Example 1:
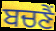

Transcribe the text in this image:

ਬਚਣੈਂ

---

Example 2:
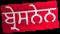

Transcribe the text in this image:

ਬ੍ਰੇਸਨੇਨ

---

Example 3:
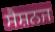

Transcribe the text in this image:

ਸੈਸ਼ਨਜ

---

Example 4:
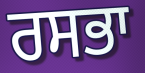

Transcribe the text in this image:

ਰਸਭਾ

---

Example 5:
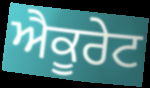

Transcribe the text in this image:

ਐਕੂਰੇਟ